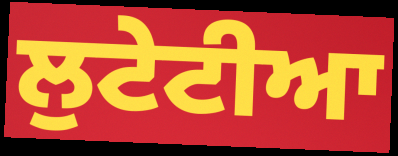
ਲੁਟੇਟੀਆ